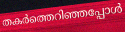
തകർത്തെറിഞ്ഞപ്പോൾ